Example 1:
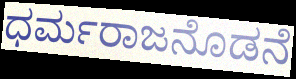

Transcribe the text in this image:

ಧರ್ಮರಾಜನೊಡನೆ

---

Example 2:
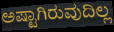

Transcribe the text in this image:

ಅಷ್ಟಾಗಿರುವುದಿಲ್ಲ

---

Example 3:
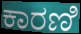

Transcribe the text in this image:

ಕಾರಣಿ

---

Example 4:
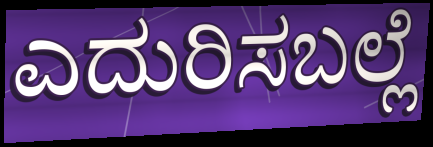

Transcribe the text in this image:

ಎದುರಿಸಬಲ್ಲೆ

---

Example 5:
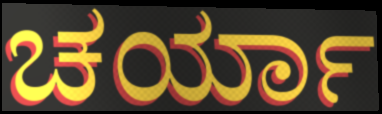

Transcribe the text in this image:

ಚರ್ಯಾ